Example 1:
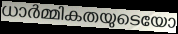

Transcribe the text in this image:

ധാർമ്മികതയുടെയോ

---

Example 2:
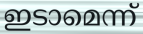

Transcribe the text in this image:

ഇടാമെന്ന്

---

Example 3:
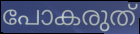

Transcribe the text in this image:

പോകരുത്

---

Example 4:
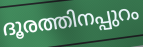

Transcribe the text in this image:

ദൂരത്തിനപ്പുറം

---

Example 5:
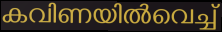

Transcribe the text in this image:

കവിണയിൽവെച്ച്